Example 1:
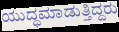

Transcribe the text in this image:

ಯುದ್ಧಮಾಡುತ್ತಿದ್ದರು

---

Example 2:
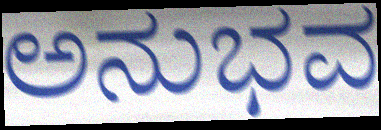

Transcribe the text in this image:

ಅನುಭವ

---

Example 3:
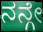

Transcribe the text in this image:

ನನ್ಗೇ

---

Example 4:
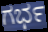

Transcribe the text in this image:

ಗರ್ಭ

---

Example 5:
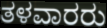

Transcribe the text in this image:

ತಳವಾರರು